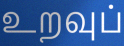
உறவுப்